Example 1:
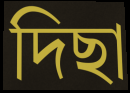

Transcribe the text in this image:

দিছা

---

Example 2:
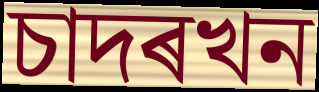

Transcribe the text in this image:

চাদৰখন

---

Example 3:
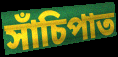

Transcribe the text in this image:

সাঁচিপাত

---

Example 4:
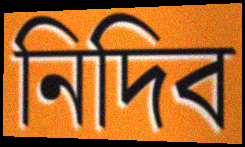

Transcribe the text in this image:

নিদিব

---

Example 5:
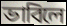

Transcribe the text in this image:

ভাবিলে